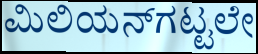
ಮಿಲಿಯನ್‌ಗಟ್ಟಲೇ